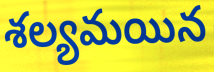
శల్యమయిన